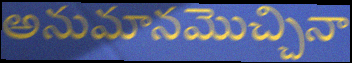
అనుమానమొచ్చినా